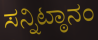
ಸನ್ನಿಟ್ಠಾನಂ